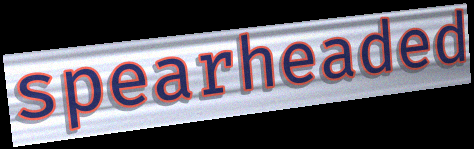
spearheaded